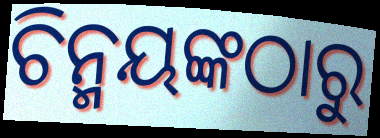
ଚିନ୍ମୟଙ୍କଠାରୁ